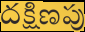
దక్షిణపు